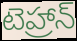
టెహ్రాన్